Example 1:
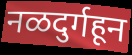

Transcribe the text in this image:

नळदुर्गहून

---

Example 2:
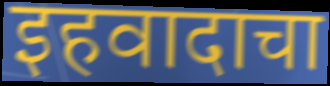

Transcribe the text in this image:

इहवादाचा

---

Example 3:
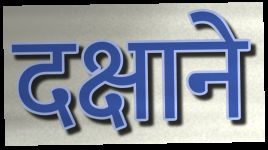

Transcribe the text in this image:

दक्षाने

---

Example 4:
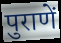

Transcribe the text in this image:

पुराणें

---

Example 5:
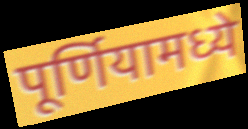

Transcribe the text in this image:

पूर्णियामध्ये